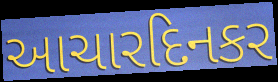
આચારદિનકર